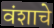
वंशाचे